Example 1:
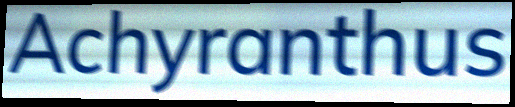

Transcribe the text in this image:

Achyranthus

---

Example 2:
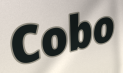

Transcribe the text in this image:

Cobo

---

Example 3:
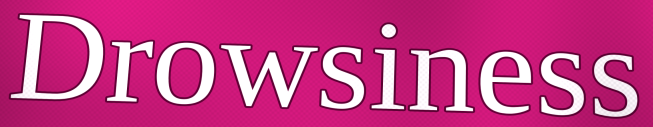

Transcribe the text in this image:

Drowsiness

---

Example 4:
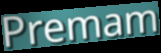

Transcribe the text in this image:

Premam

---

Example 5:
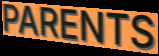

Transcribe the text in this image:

PARENTS